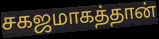
சகஜமாகத்தான்